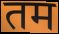
तम